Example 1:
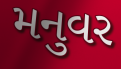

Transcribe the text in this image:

મનુવર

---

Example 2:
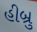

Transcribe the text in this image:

હીબ્રુ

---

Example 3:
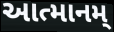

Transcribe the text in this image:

આત્માનમ્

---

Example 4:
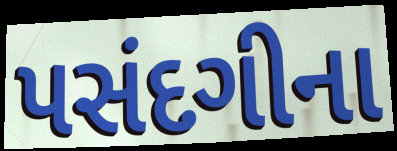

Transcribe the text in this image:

પસંદગીના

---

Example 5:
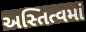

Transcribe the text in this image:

અસ્તિત્વમાં